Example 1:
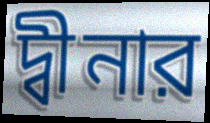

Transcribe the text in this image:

দ্বীনার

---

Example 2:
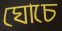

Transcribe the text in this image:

ঘোচে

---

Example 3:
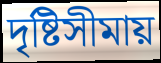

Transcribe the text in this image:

দৃষ্টিসীমায়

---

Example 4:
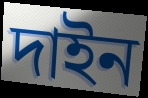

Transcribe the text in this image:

দাইন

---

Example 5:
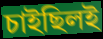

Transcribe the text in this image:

চাইছিলই